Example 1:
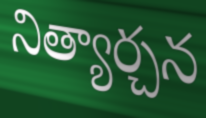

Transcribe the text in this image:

నిత్యార్చన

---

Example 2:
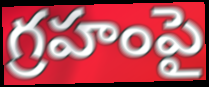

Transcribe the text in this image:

గ్రహంపై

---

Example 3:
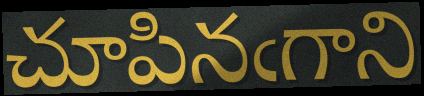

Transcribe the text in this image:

చూపినఁగాని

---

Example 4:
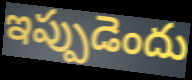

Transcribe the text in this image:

ఇప్పుడెందు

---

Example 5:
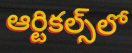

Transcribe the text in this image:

ఆర్టికల్స్‌లో